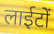
लाईटों